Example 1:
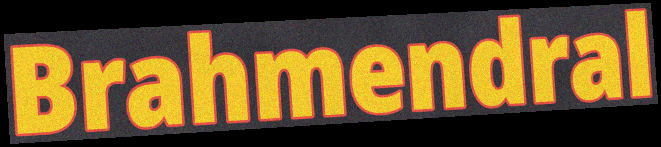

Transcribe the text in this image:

Brahmendral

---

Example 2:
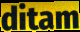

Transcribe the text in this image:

ditam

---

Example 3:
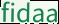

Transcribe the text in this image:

fidaa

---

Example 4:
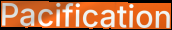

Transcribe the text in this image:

Pacification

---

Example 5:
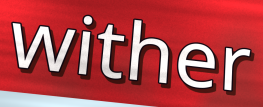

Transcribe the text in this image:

wither